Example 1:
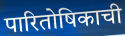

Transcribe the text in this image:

पारितोषिकाची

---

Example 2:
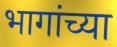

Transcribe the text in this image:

भागांच्या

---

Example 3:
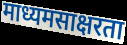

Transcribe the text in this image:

माध्यमसाक्षरता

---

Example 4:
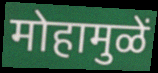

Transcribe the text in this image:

मोहामुळें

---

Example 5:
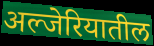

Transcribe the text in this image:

अल्जेरियातील